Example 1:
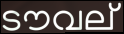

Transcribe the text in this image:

ടൗവല്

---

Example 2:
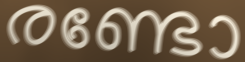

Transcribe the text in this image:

രണ്ടോ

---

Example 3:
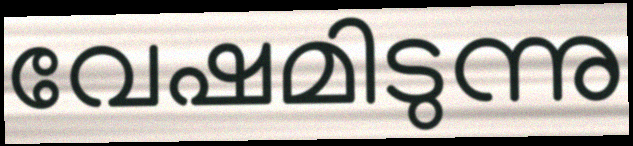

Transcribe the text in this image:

വേഷമിടുന്നു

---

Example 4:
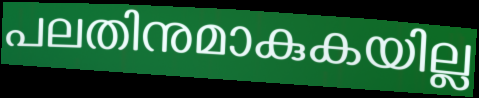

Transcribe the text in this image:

പലതിനുമാകുകയില്ല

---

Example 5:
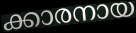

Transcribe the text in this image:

ക്കാരനായ